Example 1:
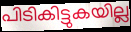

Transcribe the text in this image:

പിടികിട്ടുകയില്ല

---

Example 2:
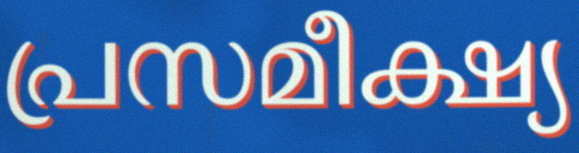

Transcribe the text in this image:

പ്രസമീക്ഷ്യ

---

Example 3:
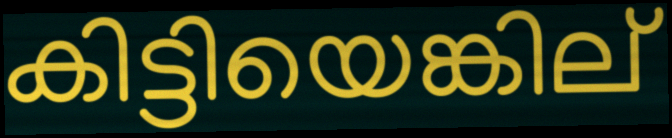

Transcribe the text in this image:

കിട്ടിയെങ്കില്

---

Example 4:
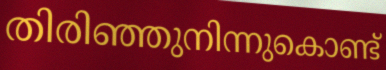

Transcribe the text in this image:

തിരിഞ്ഞുനിന്നുകൊണ്ട്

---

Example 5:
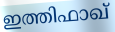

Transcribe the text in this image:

ഇത്തിഫാഖ്